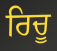
ਰਿਚੂ